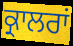
ਕ੍ਰਾਲਰਾਂ